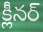
క్లీనర్